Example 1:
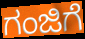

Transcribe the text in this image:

ಗಂಜಿಗೆ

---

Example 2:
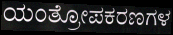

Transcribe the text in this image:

ಯಂತ್ರೋಪಕರಣಗಳ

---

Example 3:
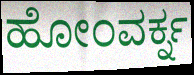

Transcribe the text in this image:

ಹೋಂವರ್ಕ್ನ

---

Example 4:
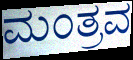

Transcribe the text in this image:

ಮಂತ್ರವ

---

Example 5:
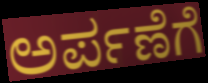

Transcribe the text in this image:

ಅರ್ಪಣೆಗೆ